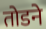
तोडने